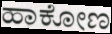
ಹಾಕೋಣ